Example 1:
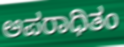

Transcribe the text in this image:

ಅಪರಾಧಿತಂ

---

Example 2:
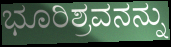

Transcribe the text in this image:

ಭೂರಿಶ್ರವನನ್ನು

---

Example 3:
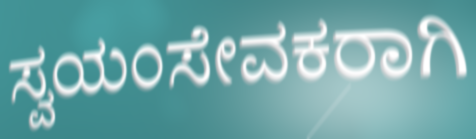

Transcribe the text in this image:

ಸ್ವಯಂಸೇವಕರಾಗಿ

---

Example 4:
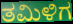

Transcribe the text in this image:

ತಮಿಳಿಗ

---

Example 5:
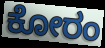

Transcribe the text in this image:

ಕೋರಂ